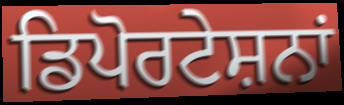
ਡਿਪੋਰਟੇਸ਼ਨਾਂ